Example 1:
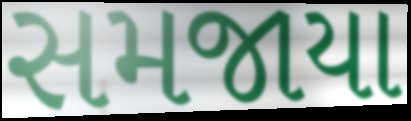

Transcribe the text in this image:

સમજાયા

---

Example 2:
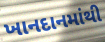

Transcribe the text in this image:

ખાનદાનમાંથી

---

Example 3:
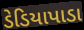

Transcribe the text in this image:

ડેડિયાપાડા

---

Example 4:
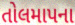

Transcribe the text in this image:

તોલમાપના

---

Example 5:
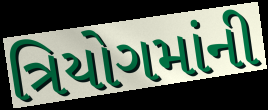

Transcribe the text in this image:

ત્રિયોગમાંની